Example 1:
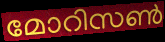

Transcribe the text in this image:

മോറിസൺ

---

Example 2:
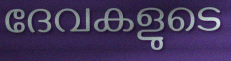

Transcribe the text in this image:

ദേവകളുടെ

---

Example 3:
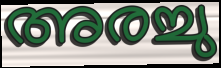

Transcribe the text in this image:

അരച്ചു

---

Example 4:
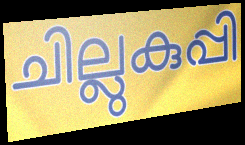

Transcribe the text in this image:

ചില്ലുകുപ്പി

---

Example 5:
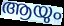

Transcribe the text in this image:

ആയും